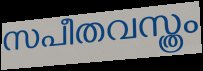
സപീതവസ്ത്രം